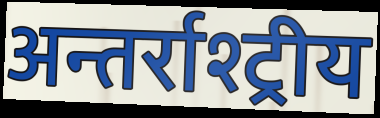
अन्तर्राश्ट्रीय